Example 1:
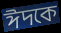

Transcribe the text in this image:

ঈদকে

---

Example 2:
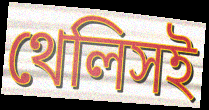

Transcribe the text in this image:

থেলিসই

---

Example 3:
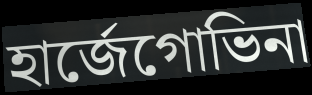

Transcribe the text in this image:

হার্জেগোভিনা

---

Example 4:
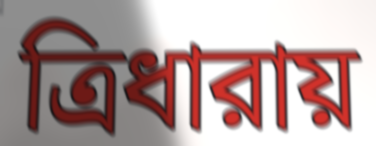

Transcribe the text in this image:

ত্রিধারায়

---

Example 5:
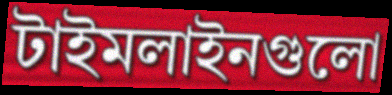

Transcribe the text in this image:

টাইমলাইনগুলো